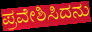
ಪ್ರವೇಶಿಸಿದನು